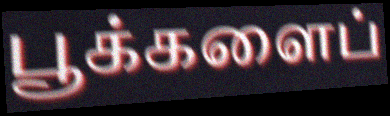
பூக்களைப்